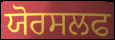
ਯੋਰਸਲਫ